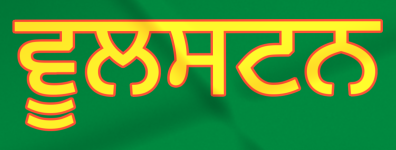
ਵੂਲਸਟਨ